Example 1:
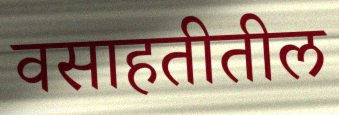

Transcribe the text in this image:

वसाहतीतील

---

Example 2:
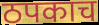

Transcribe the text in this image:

ठपकाच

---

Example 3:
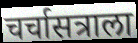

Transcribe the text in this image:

चर्चासत्राला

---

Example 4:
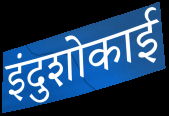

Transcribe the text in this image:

इंदुशोकाई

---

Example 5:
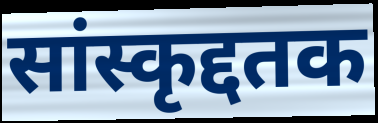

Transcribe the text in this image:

सांस्कृद्दतक